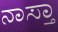
ನಾಸ್ತಾ